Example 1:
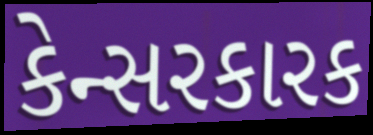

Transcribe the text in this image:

કેન્સરકારક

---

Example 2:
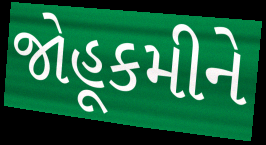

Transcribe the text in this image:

જોહૂકમીને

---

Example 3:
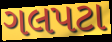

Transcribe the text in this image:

ગલપટા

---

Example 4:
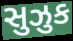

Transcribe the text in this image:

સુઝુક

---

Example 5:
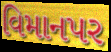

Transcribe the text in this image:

વિમાનપર